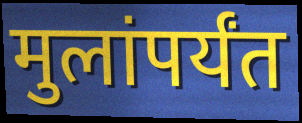
मुलांपर्यंत